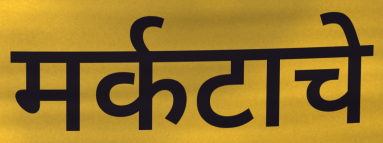
मर्कटाचे